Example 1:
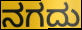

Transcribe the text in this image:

ನಗದು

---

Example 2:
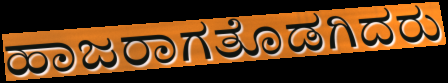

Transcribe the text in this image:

ಹಾಜರಾಗತೊಡಗಿದರು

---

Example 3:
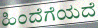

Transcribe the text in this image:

ಹಿಂದೆಗೆಯದೆ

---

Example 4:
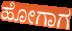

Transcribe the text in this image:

ಹೋಗಾಗ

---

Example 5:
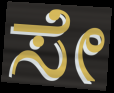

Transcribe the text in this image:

ಸೇ